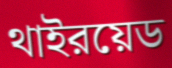
থাইরয়েড